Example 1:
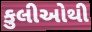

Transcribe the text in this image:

કુલીઓથી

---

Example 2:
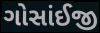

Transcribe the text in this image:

ગોસાંઈજી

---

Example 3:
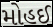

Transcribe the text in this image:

મોહઈ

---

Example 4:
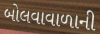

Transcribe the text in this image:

બોલવાવાળાની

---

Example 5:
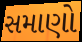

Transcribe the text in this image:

સમાણો